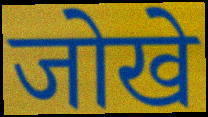
जोखे